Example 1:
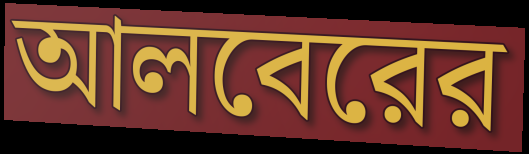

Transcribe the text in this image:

আলবেরের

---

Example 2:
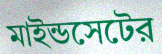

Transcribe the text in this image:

মাইন্ডসেটের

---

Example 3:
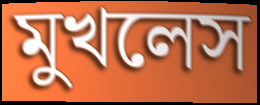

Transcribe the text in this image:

মুখলেস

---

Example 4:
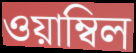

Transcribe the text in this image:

ওয়াম্বিল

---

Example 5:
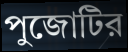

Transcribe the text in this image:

পুজোটির